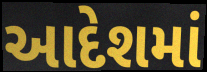
આદેશમાં